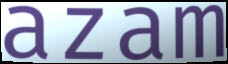
azam